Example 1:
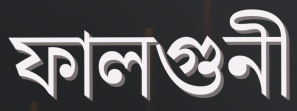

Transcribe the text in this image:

ফালগুনী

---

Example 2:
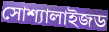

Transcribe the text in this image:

সোশ্যালাইজড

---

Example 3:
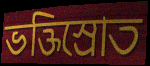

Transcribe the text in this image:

ভক্তিস্রোত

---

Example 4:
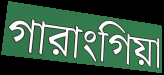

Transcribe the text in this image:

গারাংগিয়া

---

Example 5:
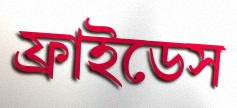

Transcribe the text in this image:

ফ্রাইডেস